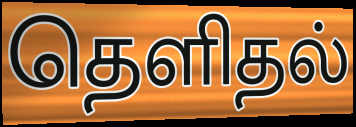
தெளிதல்